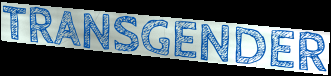
TRANSGENDER